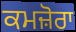
ਕਮਜ਼ੋਰਾ